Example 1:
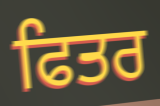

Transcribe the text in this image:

ਫਿਤਰ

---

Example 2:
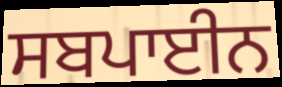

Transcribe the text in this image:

ਸਬਪਾਈਨ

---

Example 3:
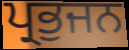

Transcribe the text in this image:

ਪ੍ਰਭੁਜਨ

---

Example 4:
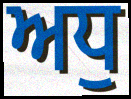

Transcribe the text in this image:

ਅਧੁ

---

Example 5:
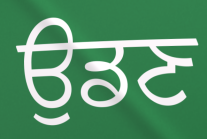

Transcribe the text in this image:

ਉਡਣ